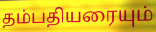
தம்பதியரையும்